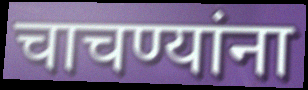
चाचण्यांना